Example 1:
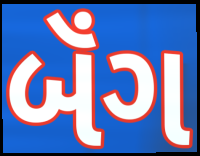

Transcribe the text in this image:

બૅંગ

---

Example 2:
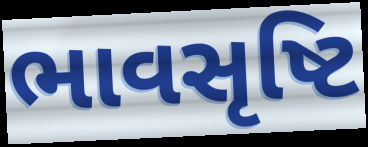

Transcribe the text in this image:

ભાવસૃષ્ટિ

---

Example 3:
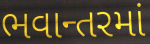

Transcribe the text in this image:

ભવાન્તરમાં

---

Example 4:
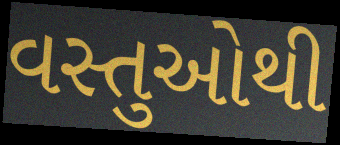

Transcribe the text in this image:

વસ્તુઓથી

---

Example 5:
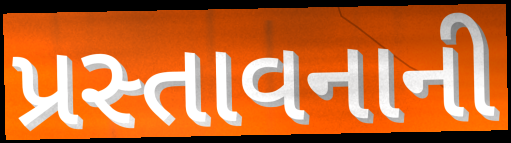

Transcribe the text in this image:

પ્રસ્તાવનાની